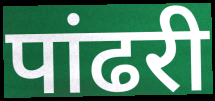
पांढरी